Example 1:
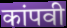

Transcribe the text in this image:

कांपवी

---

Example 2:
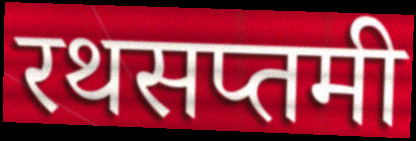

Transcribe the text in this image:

रथसप्तमी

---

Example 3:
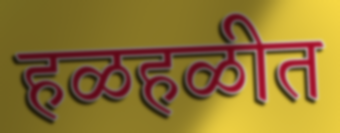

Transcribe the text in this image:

हळहळीत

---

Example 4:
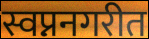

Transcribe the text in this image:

स्वप्ननगरीत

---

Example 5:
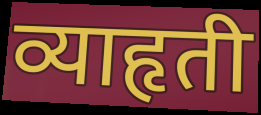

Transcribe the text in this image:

व्याहृती